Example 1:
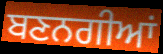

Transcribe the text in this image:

ਬਣਨਗੀਆਂ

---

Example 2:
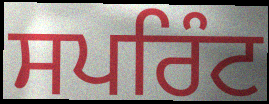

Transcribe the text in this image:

ਸਪਰਿੰਟ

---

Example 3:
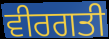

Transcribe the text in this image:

ਵੀਰਗਤੀ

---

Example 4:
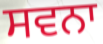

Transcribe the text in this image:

ਸਵਨਾ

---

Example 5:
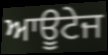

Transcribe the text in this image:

ਆਊਟੇਜ